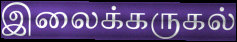
இலைக்கருகல்